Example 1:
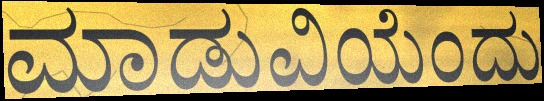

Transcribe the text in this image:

ಮಾಡುವಿಯೆಂದು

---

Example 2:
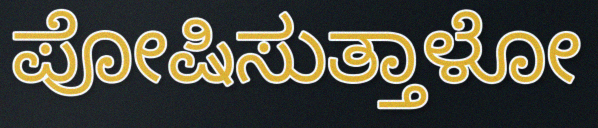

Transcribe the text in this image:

ಪೋಷಿಸುತ್ತಾಳೋ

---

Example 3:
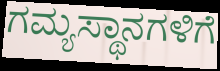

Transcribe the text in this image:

ಗಮ್ಯಸ್ಥಾನಗಳಿಗೆ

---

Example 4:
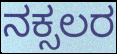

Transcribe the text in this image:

ನಕ್ಸಲರ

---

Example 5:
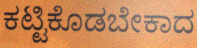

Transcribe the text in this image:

ಕಟ್ಟಿಕೊಡಬೇಕಾದ